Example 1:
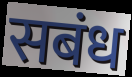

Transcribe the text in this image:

सबंध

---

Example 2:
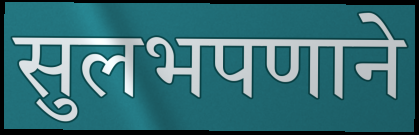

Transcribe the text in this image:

सुलभपणाने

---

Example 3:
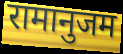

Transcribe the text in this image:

रामानुजम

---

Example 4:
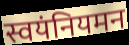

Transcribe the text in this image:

स्वयंनियमन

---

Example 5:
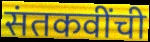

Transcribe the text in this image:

संतकवींची